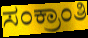
ಸಂಕ್ರಾಂತಿ